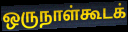
ஒருநாள்கூடக்